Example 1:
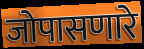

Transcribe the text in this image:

जोपासणारे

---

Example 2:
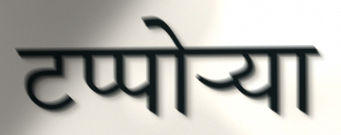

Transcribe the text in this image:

टप्पोऱ्या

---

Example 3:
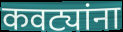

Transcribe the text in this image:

कवट्यांना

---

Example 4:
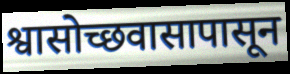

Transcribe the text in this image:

श्वासोच्छवासापासून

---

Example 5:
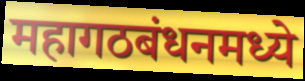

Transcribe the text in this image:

महागठबंधनमध्ये